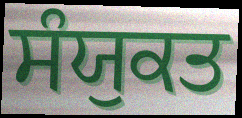
ਸੰਯੁਕਤ